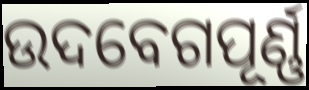
ଉଦବେଗପୂର୍ଣ୍ଣ